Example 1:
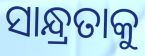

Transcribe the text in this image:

ସାନ୍ଧ୍ରତାକୁ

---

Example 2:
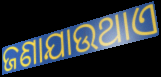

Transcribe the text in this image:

ଜଣାଯାଉଥାଏ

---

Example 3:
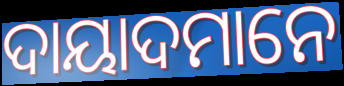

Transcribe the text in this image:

ଦାୟାଦମାନେ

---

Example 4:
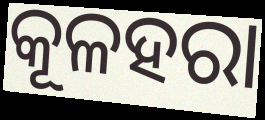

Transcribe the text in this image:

କୂଳହରା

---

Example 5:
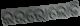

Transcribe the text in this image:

ଇଉରୋଲୋଜି